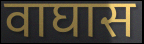
वाघास